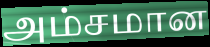
அம்சமான